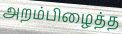
அறம்பிழைத்த